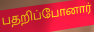
பதறிப்போனார்